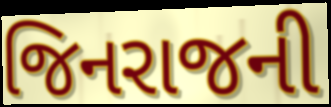
જિનરાજની